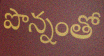
పొన్నంతో